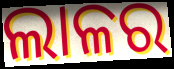
ଲାଳର